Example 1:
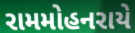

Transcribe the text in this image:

રામમોહનરાયે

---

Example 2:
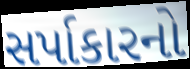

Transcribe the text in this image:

સર્પાકારનો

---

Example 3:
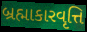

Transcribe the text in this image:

બ્રહ્માકારવૃત્તિ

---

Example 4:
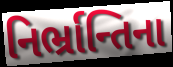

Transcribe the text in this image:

નિર્ભ્રાન્તિના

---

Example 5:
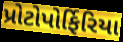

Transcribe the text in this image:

પ્રોટોપોર્ફિરિયા